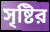
সৃষ্টির